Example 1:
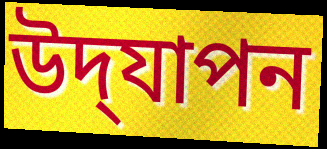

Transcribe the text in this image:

উদ্‌যাপন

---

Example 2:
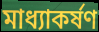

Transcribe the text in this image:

মাধ্যাকৰ্ষণ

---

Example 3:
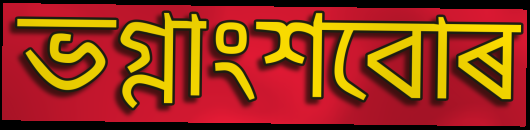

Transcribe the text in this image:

ভগ্নাংশবোৰ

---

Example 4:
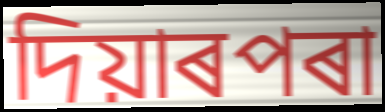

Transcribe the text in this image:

দিয়াৰপৰা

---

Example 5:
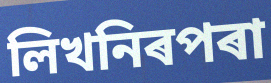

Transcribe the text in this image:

লিখনিৰপৰা